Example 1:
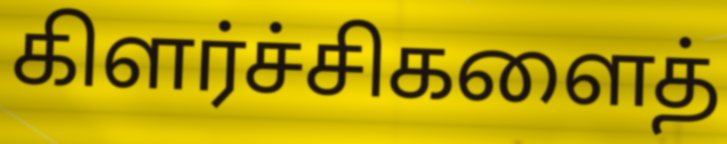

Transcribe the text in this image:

கிளர்ச்சிகளைத்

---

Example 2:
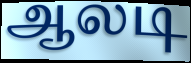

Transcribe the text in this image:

ஆலடி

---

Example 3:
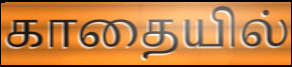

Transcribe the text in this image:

காதையில்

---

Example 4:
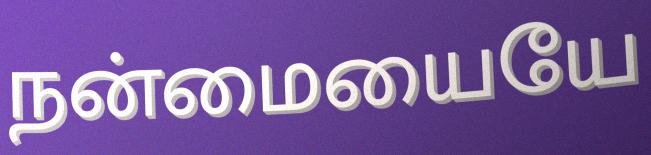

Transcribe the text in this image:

நன்மையையே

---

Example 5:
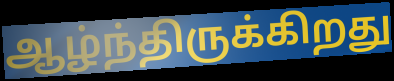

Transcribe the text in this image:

ஆழ்ந்திருக்கிறது